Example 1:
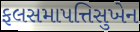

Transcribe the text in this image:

ફલસમાપત્તિસુખેન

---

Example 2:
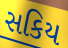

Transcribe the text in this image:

સકિય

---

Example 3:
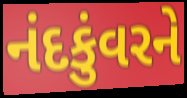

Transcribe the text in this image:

નંદકુંવરને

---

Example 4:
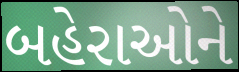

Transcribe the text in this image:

બહેરાઓને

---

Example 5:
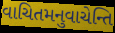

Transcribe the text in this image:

વાચિતમનુવાચેન્તિ